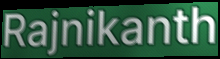
Rajnikanth